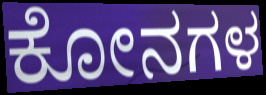
ಕೋನಗಳ